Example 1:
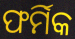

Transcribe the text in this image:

ଫର୍ମିକ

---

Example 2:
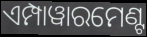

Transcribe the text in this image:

ଏମ୍ପାୱାରମେଣ୍ଟ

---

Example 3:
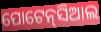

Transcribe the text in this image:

ପୋଟେନ୍‌ସିଆଲ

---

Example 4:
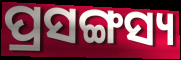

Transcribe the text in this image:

ପ୍ରସଙ୍ଗସ୍ୟ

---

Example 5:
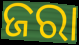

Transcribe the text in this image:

ଜରା